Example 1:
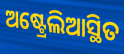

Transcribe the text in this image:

ଅଷ୍ଟ୍ରେଲିଆସ୍ଥିତ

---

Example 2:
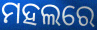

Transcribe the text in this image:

ମହଲରେ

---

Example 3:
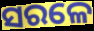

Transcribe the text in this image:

ସରଳେ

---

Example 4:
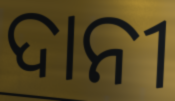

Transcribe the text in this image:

ଦାନୀ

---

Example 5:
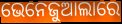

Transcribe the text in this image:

ଭେନେଜୁଆଲାରେ